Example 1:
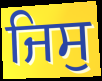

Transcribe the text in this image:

ਜਿਸੁ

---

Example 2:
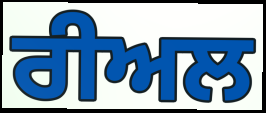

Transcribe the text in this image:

ਰੀਅਲ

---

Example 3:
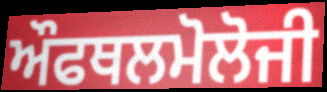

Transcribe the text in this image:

ਔਫਥਲਮੋਲੋਜੀ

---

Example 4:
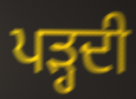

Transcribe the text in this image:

ਪੜ੍ਹਦੀ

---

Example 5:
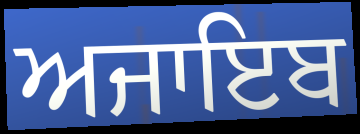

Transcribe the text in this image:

ਅਜਾਇਬ